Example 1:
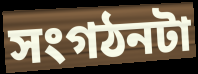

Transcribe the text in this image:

সংগঠনটা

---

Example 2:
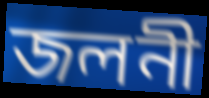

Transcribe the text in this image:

জলনী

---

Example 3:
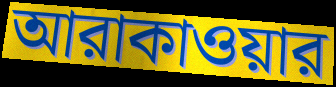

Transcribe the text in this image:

আরাকাওয়ার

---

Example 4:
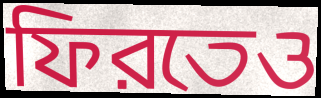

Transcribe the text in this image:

ফিরতেও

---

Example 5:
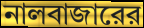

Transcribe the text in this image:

নালবাজারের